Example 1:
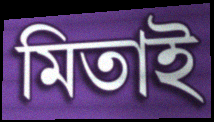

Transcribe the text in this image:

মিতাই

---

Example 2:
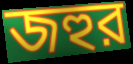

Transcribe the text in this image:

জহুর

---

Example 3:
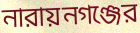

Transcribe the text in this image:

নারায়নগঞ্জের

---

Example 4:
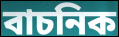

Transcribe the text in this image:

বাচনিক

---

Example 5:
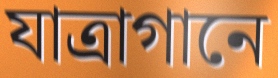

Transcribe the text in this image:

যাত্রাগানে